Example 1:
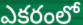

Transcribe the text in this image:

ఎకరంలో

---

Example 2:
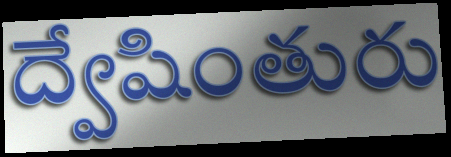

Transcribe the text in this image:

ద్వేషింతురు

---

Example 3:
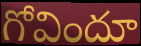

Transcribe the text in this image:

గోవిందూ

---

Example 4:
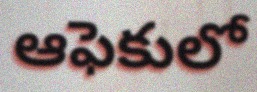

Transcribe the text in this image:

ఆఫెకులో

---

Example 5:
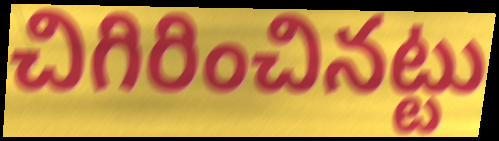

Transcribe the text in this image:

చిగిరించినట్టు